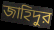
জাহিদুর